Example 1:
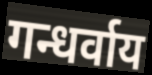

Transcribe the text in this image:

गन्धर्वाय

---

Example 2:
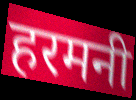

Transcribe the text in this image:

हरमनी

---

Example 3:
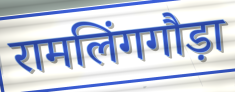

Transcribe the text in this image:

रामलिंगगौड़ा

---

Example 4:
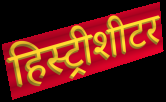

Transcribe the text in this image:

हिस्ट्रीशीटर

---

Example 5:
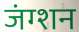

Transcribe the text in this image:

जंग्शन